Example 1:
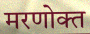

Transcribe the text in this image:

मरणोक्त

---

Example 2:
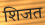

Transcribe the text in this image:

शिजत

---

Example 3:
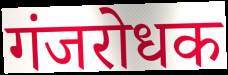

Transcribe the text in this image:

गंजरोधक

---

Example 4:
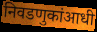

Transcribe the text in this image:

निवडणुकांआधी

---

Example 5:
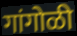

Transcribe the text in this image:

गांगोळी